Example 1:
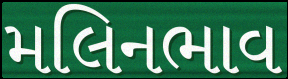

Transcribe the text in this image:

મલિનભાવ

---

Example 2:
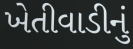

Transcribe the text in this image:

ખેતીવાડીનું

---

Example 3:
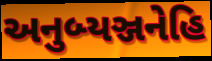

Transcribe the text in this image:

અનુબ્યઞ્જનેહિ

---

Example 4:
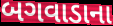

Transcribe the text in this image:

બગવાડાના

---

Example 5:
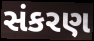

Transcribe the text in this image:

સંકરણ